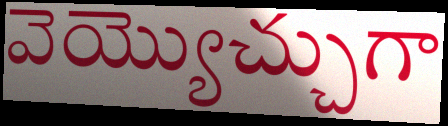
వెయ్యొచ్చుగా